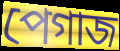
পেগাজ